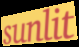
sunlit